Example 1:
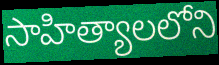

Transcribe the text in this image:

సాహిత్యాలలోని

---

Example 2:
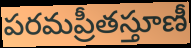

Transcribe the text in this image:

పరమప్రీతస్తూణీ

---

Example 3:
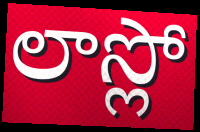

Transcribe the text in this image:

లాస్లో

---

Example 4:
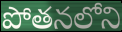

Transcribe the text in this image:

పోతనలోని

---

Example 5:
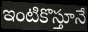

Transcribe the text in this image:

ఇంటికొస్తూనే